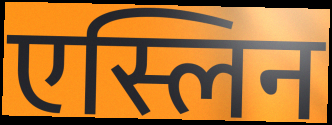
एस्लिन